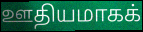
ஊதியமாகக்